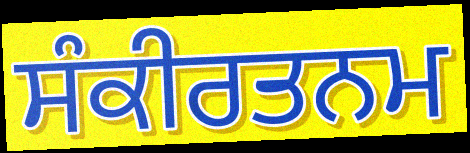
ਸੰਕੀਰਤਨਮ